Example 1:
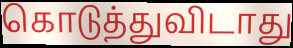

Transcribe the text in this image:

கொடுத்துவிடாது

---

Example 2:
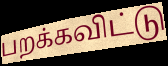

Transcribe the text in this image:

பறக்கவிட்டு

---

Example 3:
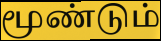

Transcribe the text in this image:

மூண்டும்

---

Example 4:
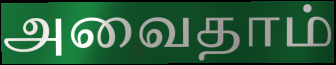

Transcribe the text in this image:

அவைதாம்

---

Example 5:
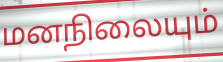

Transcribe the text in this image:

மனநிலையும்